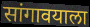
सांगावयाला